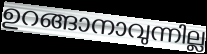
ഉറങ്ങാനാവുന്നില്ല